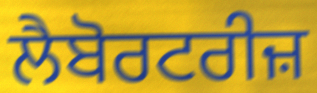
ਲੈਬੋਰਟਰੀਜ਼